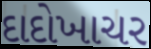
દાદોખાચર